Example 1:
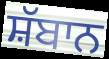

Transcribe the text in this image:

ਸ਼ੱਬਾਨ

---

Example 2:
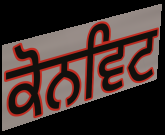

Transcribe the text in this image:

ਕੋਨਵਿਟ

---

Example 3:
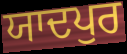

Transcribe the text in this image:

ਯਾਦਪੁਰ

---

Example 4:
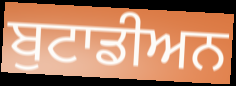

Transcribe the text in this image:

ਬੁਟਾਡੀਅਨ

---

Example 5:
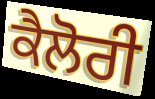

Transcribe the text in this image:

ਕੈਲੋਰੀ